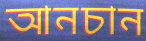
আনচান